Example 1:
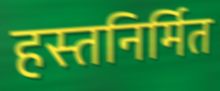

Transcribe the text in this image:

हस्तनिर्मित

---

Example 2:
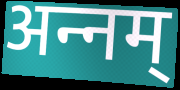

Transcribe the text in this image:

अन्नम्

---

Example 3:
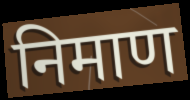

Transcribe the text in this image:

निमाण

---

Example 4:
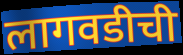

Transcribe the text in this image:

लागवडीची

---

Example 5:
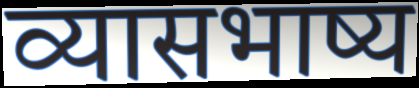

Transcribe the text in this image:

व्यासभाष्य